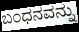
ಬಂಧನವನ್ನು